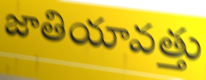
జాతియావత్తు